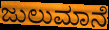
ಜುಲುಮಾನೆ